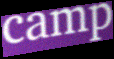
camp